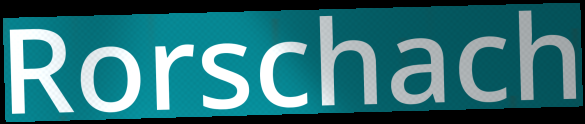
Rorschach